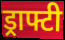
ड्राफ्टी